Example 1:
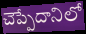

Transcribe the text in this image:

చెప్పేదానిలో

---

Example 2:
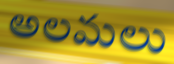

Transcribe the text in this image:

అలమలు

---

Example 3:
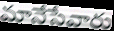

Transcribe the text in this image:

మానేసేవారు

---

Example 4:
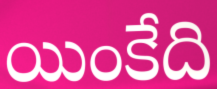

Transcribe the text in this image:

యింకేది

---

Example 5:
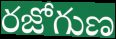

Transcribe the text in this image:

రజోగుణ